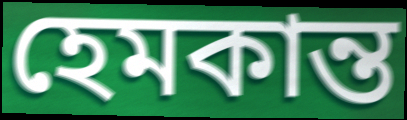
হেমকান্ত